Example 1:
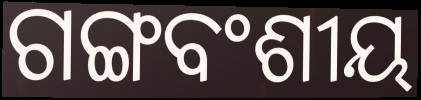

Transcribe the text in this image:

ଗଙ୍ଗବଂଶୀୟ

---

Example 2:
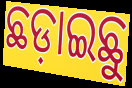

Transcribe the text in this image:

ଛଡ଼ାଇଛୁ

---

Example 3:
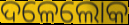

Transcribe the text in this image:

ଦଳେଲୋକ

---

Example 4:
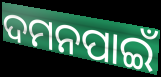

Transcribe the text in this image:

ଦମନପାଇଁ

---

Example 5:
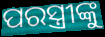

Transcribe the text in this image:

ପରସ୍ତ୍ରୀଙ୍କୁ